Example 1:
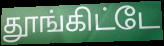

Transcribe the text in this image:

தூங்கிட்டே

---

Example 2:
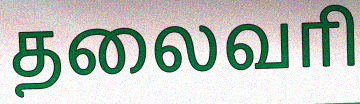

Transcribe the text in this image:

தலைவரி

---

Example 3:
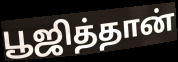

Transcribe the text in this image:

பூஜித்தான்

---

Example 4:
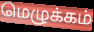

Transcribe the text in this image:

மெழுக்கம்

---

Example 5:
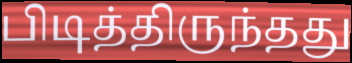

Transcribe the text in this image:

பிடித்திருந்தது